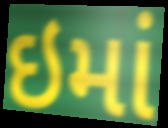
ઇમાં